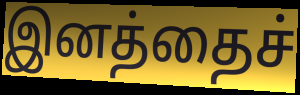
இனத்தைச்